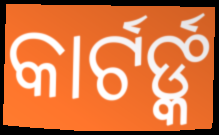
କାର୍ଟର୍ଙ୍କ